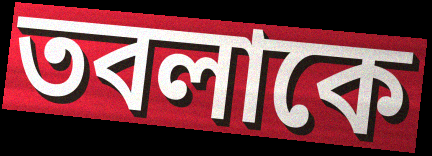
তবলাকে